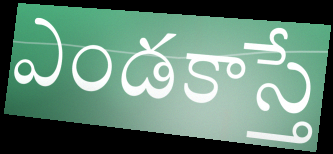
ఎండకాస్తే